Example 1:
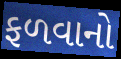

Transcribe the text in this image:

ફળવાનો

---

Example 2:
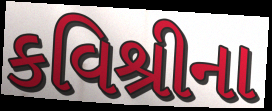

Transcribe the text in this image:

કવિશ્રીના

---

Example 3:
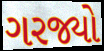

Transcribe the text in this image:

ગરજ્યો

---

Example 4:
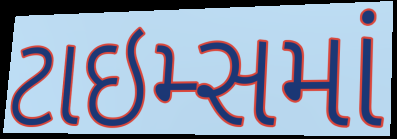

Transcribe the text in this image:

ટાઇમ્સમાં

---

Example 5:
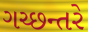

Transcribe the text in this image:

ગચ્છન્તરે